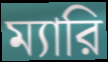
ম্যারি